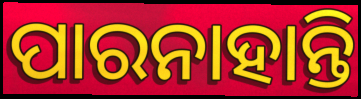
ପାରନାହାନ୍ତି